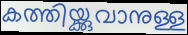
കത്തിയ്ക്കുവാനുള്ള